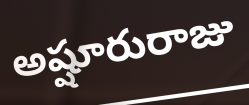
అష్షూరురాజు